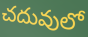
చదువులో